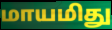
மாயமிது